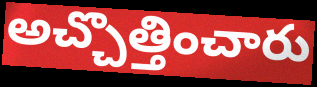
అచ్చొత్తించారు